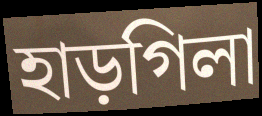
হাড়গিলা